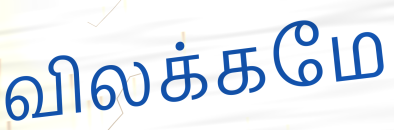
விலக்கமே